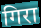
गिरा